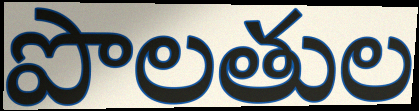
పొలతుల